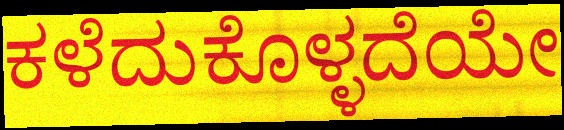
ಕಳೆದುಕೊಳ್ಳದೆಯೇ